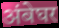
अंबेघर